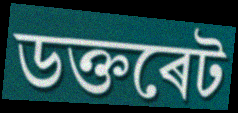
ডক্তৰেট